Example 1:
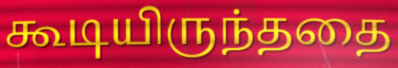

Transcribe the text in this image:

கூடியிருந்ததை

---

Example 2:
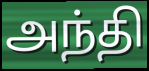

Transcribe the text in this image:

அந்தி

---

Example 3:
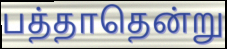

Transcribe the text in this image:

பத்தாதென்று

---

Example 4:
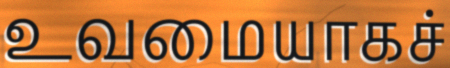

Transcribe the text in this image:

உவமையாகச்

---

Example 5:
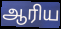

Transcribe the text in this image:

ஆரிய